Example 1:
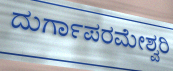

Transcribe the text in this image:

ದುರ್ಗಾಪರಮೇಶ್ವರಿ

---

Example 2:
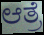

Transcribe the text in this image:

ಆತ್ರೆ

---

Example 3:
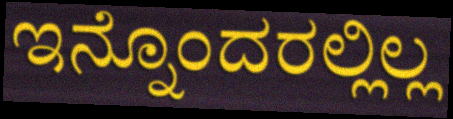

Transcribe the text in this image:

ಇನ್ನೊಂದರಲ್ಲಿಲ್ಲ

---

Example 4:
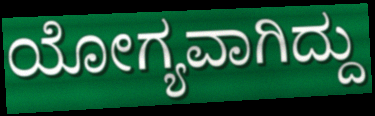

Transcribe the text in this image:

ಯೋಗ್ಯವಾಗಿದ್ದು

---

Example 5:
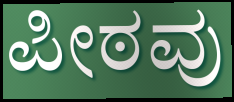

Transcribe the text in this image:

ಪೀಠವು